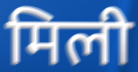
मिली